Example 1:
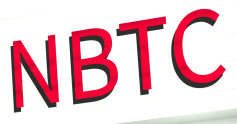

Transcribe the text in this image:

NBTC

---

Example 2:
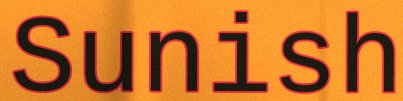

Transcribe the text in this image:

Sunish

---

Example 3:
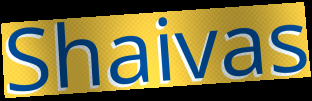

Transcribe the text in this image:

Shaivas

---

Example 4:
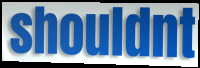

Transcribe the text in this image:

shouldnt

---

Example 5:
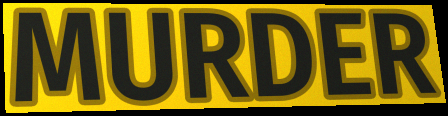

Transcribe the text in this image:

MURDER